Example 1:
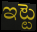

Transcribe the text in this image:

ఇట్టె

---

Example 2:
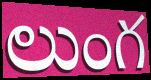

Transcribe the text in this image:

లుంగ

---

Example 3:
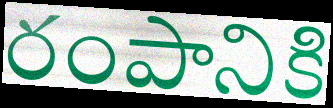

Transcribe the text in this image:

రంపానికి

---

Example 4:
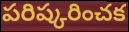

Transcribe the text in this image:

పరిష్కరించక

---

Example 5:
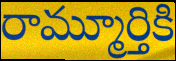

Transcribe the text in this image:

రామ్మూర్తికి